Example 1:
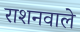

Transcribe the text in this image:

राशनवाले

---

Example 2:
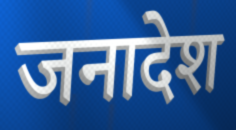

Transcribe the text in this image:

जनादेश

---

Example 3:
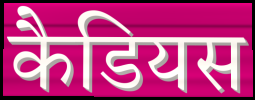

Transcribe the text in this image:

कैडियस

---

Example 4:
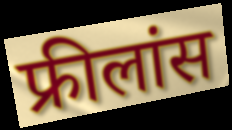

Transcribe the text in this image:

फ्रीलांस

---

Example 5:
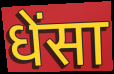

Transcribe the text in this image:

धेंसा